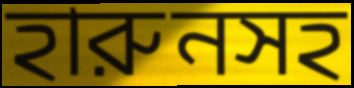
হারুনসহ